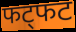
फट्फट